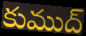
కుముద్